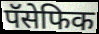
पॅसेफिक